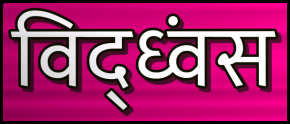
विद्ध्वंस